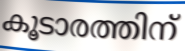
കൂടാരത്തിന്